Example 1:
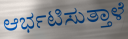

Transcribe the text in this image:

ಆರ್ಭಟಿಸುತ್ತಾಳೆ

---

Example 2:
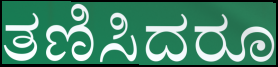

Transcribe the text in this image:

ತಣಿಸಿದರೂ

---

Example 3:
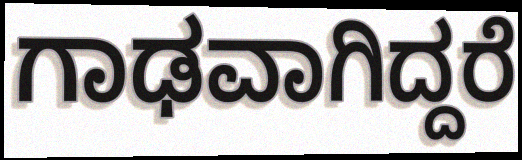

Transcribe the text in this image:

ಗಾಢವಾಗಿದ್ದರೆ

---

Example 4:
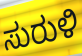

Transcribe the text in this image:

ಸುರುಳಿ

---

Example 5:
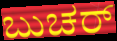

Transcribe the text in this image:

ಬುಚರ್